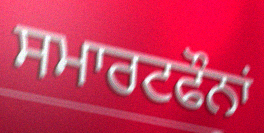
ਸਮਾਰਟਫੌਨਾਂ